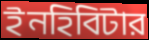
ইনহিবিটার